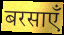
बरसाएँ